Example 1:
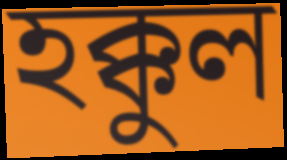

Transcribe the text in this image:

হক্কুল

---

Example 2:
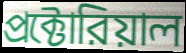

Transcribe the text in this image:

প্রক্টোরিয়াল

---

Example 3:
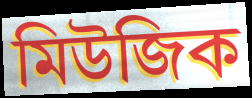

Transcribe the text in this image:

মিউজিক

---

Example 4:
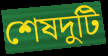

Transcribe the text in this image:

শেষদুটি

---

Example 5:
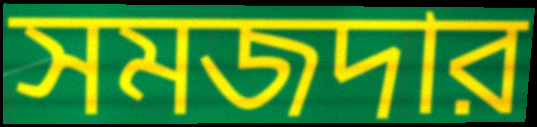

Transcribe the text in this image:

সমজদার